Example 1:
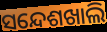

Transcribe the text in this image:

ସନ୍ଦେଶଖାଲି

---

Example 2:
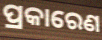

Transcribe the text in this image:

ପ୍ରକାରେଣ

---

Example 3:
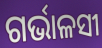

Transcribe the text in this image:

ଗର୍ଭାଳସୀ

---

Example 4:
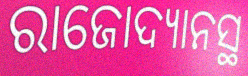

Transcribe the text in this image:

ରାଜୋଦ୍ୟାନସ୍ଥ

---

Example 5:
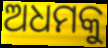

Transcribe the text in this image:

ଅଧମକୁ